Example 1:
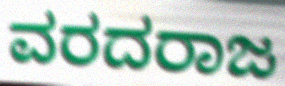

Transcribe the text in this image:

ವರದರಾಜ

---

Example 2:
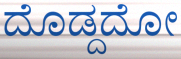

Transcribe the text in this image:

ದೊಡ್ದದೋ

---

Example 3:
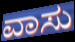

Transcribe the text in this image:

ವಾಸು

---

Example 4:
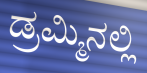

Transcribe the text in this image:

ಡ್ರಮ್ಮಿನಲ್ಲಿ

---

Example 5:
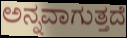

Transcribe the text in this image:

ಅನ್ನವಾಗುತ್ತದೆ